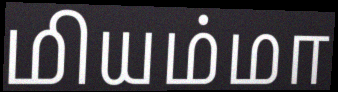
மியம்மா